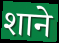
शाने